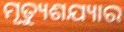
ମୃତ୍ୟୁଶଯ୍ୟାର